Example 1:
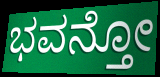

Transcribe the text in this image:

ಭವನ್ತೋ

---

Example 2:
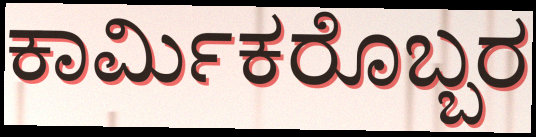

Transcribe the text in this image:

ಕಾರ್ಮಿಕರೊಬ್ಬರ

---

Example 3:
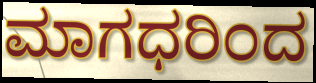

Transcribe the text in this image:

ಮಾಗಧರಿಂದ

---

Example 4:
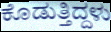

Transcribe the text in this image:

ಕೊಡುತ್ತಿದ್ದಳು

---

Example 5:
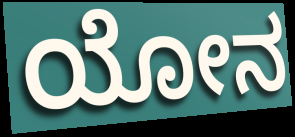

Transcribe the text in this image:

ಯೋನ